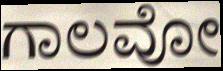
ಗಾಲವೋ